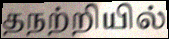
தநற்றியில்